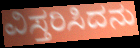
ವಿಸ್ತರಿಸಿದನು